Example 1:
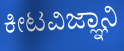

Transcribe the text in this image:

ಕೀಟವಿಜ್ಞಾನಿ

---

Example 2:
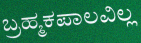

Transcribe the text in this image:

ಬ್ರಹ್ಮಕಪಾಲವಿಲ್ಲ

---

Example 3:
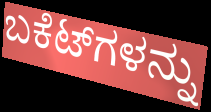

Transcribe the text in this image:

ಬಕೆಟ್‌ಗಳನ್ನು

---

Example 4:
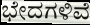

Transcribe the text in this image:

ಭೇದಗಳಿವೆ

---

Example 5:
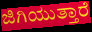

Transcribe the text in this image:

ಜಿಗಿಯುತ್ತಾರೆ